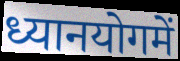
ध्यानयोगमें